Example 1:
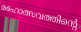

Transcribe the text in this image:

മഹോത്സവത്തിന്റെ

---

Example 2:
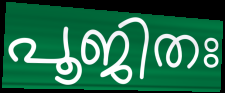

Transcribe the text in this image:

പൂജിതഃ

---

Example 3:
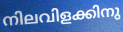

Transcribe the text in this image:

നിലവിളക്കിനു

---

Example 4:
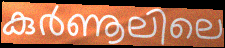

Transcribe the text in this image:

കുർണൂലിലെ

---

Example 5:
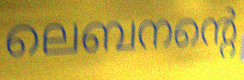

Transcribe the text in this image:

ലെബനന്റെ